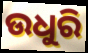
ଉଧୁରି